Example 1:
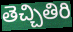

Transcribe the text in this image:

తెచ్చితిరి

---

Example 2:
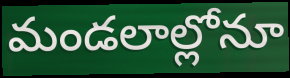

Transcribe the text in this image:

మండలాల్లోనూ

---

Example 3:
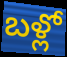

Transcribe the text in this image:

బళ్లో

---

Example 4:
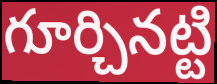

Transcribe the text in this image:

గూర్చినట్టి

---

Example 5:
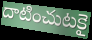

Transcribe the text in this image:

దాటించుటకై